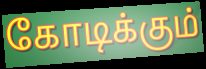
கோடிக்கும்